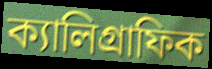
ক্যালিগ্রাফিক